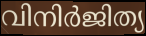
വിനിർജിത്യ